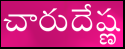
చారుదేష్ణ